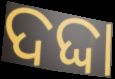
ଦଦ୍ଦା